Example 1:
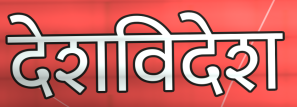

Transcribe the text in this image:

देशविदेश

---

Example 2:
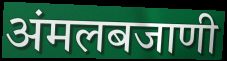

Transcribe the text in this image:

अंमलबजाणी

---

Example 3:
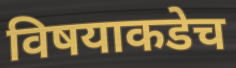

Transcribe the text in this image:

विषयाकडेच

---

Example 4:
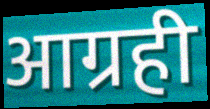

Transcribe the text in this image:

आग्रही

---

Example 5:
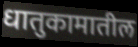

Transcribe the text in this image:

धातुकामातील